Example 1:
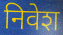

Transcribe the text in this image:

निवेश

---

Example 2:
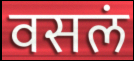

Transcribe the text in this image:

वसलं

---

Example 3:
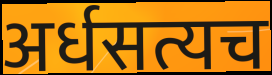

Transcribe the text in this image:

अर्धसत्यच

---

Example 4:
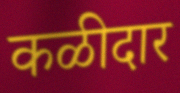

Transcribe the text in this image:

कळीदार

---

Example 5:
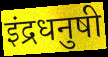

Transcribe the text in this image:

इंद्रधनुषी